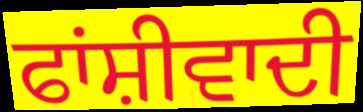
ਫਾਂਸ਼ੀਵਾਦੀ